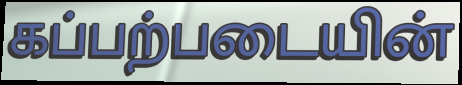
கப்பற்படையின்